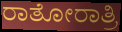
ರಾತೋರಾತ್ರಿ